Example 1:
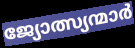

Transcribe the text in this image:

ജ്യോത്സ്യന്മാർ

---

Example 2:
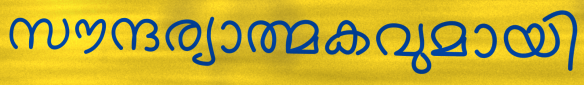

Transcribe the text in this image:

സൗന്ദര്യാത്മകവുമായി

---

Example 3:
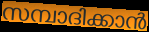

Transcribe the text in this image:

സമ്പാദിക്കാൻ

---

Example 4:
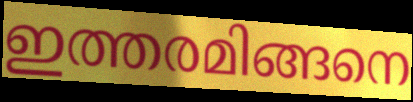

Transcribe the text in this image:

ഇത്തരമിങ്ങനെ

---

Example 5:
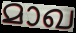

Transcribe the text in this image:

മാഖ